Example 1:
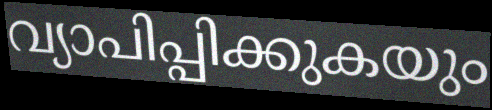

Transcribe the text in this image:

വ്യാപിപ്പിക്കുകയും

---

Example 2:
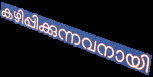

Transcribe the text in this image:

കഴിപ്പിക്കുന്നവനായി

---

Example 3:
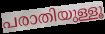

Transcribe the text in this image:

പരാതിയുള്ളൂ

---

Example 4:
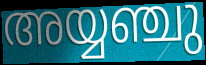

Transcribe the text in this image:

അയ്യഞ്ചു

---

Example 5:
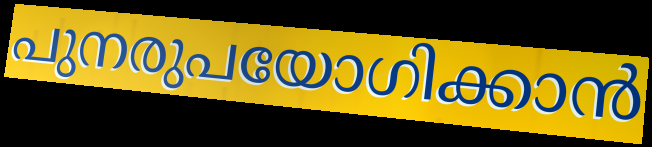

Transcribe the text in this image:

പുനരുപയോഗിക്കാൻ